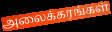
அலைக்கரங்கள்